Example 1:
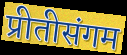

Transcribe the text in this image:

प्रीतीसंगम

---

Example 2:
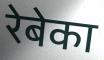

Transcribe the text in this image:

रेबेका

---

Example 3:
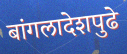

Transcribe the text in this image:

बांगलादेशपुढे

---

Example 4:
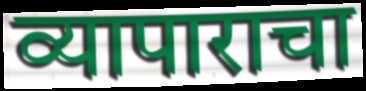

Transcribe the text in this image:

व्यापाराचा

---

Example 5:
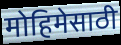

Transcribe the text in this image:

मोहिमेसाठी